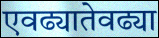
एवढ्यातेवढ्या